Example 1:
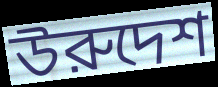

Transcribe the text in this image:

উরুদেশ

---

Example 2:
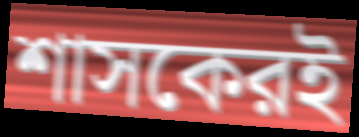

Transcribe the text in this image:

শাসকেরই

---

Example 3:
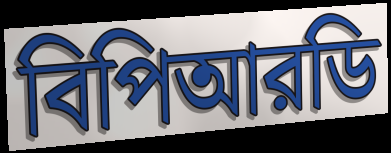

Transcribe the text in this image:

বিপিআরডি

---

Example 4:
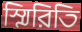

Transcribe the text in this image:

স্মিরিতি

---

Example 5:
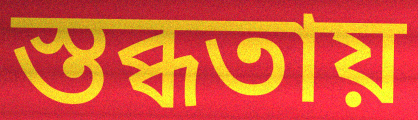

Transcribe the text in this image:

স্তব্ধতায়